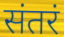
संतरं